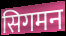
सिगमन